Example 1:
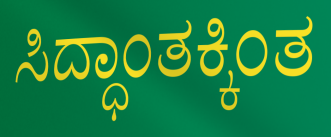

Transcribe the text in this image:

ಸಿದ್ಧಾಂತಕ್ಕಿಂತ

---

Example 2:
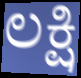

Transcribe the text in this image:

ಲಕ್ಷಿ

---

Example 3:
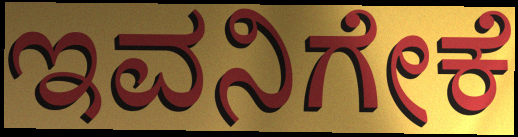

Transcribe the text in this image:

ಇವನಿಗೇಕೆ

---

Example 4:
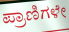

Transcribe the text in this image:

ಪ್ರಾಣಿಗಳೇ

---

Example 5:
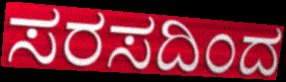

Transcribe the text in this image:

ಸರಸದಿಂದ